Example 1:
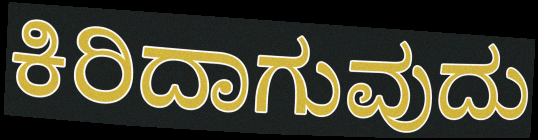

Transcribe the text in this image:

ಕಿರಿದಾಗುವುದು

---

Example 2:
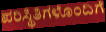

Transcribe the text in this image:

ಪರಿಸ್ಥಿತಿಗಳೊಂದಿಗೆ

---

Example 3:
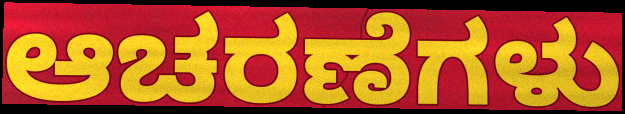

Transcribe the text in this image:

ಆಚರಣೆಗಳು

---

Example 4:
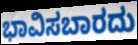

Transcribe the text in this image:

ಭಾವಿಸಬಾರದು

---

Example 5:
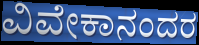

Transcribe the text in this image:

ವಿವೇಕಾನಂದರ